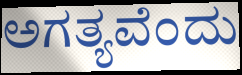
ಅಗತ್ಯವೆಂದು